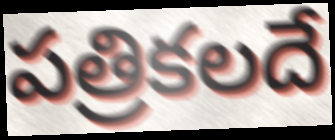
పత్రికలదే